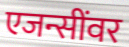
एजन्सींवर